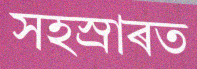
সহস্ৰাৰত